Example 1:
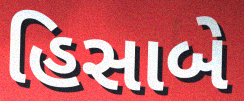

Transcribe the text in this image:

હિસાબે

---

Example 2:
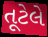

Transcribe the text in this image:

તૂટેલે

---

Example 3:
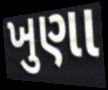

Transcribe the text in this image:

ખુણા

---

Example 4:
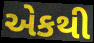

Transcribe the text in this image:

એકથી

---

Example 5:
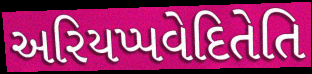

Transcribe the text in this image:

અરિયપ્પવેદિતેતિ